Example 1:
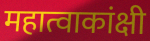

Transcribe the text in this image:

महात्वाकांक्षी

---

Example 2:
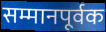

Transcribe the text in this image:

सम्मानपूर्वक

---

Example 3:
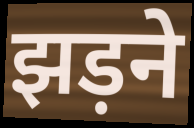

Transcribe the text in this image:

झड़ने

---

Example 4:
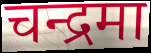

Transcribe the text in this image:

चन्द्रमा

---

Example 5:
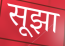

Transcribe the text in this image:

सूझा